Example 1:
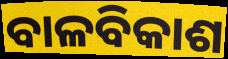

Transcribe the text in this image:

ବାଳବିକାଶ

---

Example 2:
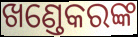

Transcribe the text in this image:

ଖଣ୍ଡେକରଙ୍କ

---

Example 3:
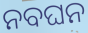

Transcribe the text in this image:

ନବଘନ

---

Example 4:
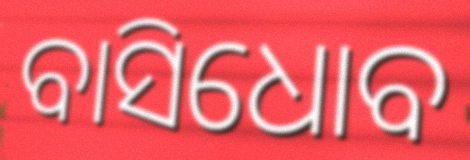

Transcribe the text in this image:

ବାସିଧୋବ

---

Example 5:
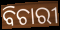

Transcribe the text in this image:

ବିଚାରୀ